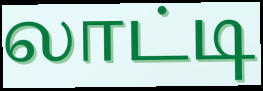
லாட்டி